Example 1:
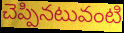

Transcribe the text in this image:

చెప్పినటువంటి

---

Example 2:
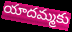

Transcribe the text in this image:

యాదమ్మకు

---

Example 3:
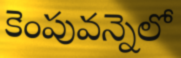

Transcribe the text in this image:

కెంపువన్నెలో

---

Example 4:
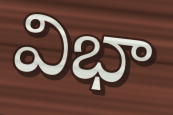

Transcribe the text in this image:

విభా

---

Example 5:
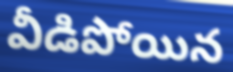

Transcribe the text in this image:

వీడిపోయిన